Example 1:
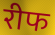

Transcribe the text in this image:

रीफ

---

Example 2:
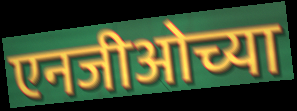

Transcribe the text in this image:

एनजीओच्या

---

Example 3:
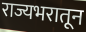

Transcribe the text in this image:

राज्यभरातून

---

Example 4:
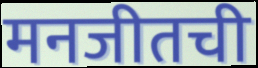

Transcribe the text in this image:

मनजीतची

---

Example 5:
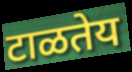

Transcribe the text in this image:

टाळतेय